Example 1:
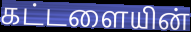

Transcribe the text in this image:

கட்டளையின்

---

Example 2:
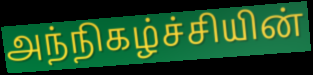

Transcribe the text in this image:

அந்நிகழ்ச்சியின்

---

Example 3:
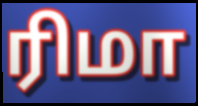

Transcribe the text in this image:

ரிமா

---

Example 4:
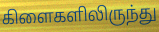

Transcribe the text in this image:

கிளைகளிலிருந்து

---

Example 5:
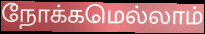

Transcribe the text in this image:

நோக்கமெல்லாம்